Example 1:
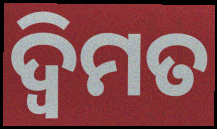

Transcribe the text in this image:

ଦ୍ୱିମତ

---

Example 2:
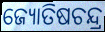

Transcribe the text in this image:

ଜ୍ୟୋତିଷଚନ୍ଦ୍ର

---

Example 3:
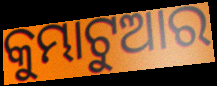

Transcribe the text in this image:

କୁମ୍ଭାଟୁଆର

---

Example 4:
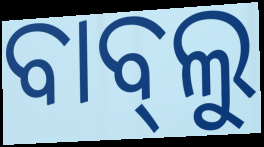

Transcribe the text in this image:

ବାବ୍‍ଲୁ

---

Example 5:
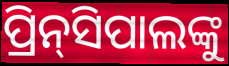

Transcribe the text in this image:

ପ୍ରିନ୍‌ସିପାଲଙ୍କୁ